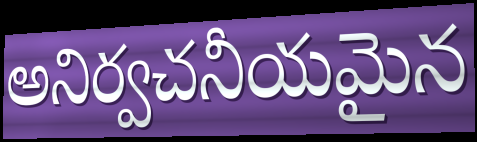
అనిర్వచనీయమైన